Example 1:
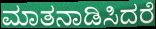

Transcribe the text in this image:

ಮಾತನಾಡಿಸಿದರೆ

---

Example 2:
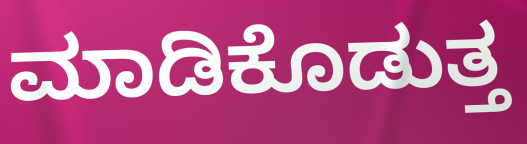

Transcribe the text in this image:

ಮಾಡಿಕೊಡುತ್ತ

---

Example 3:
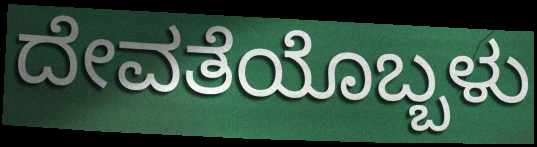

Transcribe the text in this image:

ದೇವತೆಯೊಬ್ಬಳು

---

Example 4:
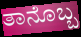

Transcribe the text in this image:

ತಾನೊಬ್ಬ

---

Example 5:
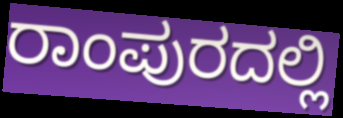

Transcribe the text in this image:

ರಾಂಪುರದಲ್ಲಿ